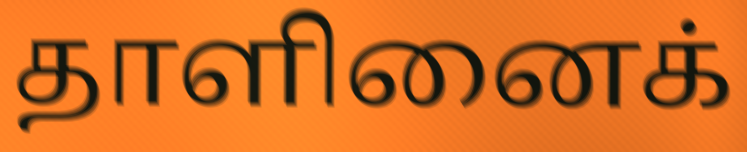
தாளினைக்